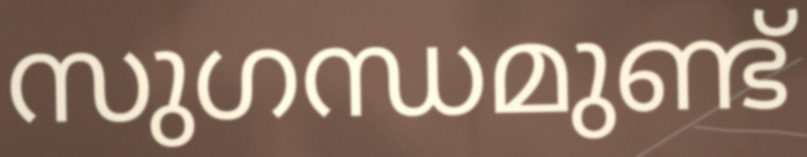
സുഗന്ധമുണ്ട്